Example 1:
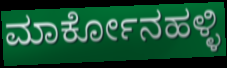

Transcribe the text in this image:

ಮಾರ್ಕೋನಹಳ್ಳಿ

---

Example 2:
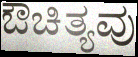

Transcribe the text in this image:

ಔಚಿತ್ಯವು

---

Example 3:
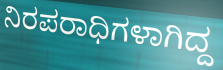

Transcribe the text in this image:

ನಿರಪರಾಧಿಗಳಾಗಿದ್ದ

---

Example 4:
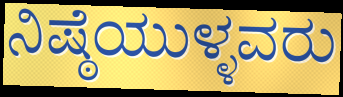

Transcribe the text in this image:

ನಿಷ್ಠೆಯುಳ್ಳವರು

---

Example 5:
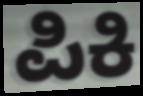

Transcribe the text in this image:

ಪಿಕಿ